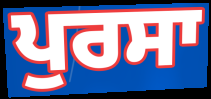
ਪੁਰਸਾ